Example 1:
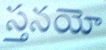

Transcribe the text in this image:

స్తనయో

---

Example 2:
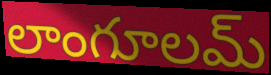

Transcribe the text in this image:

లాంగూలమ్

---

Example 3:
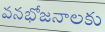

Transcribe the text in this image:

వనభోజనాలకు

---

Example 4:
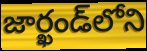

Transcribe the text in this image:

జార్ఖండ్‌లోని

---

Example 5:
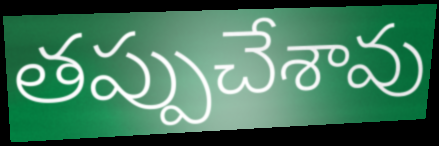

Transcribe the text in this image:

తప్పుచేశావు